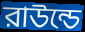
রাউন্ডে